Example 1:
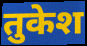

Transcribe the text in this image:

तुकेश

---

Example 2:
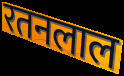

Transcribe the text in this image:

रतनलाल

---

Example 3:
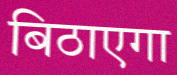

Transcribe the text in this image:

बिठाएगा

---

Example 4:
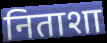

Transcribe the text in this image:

निताशा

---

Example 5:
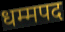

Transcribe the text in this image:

धम्मपद